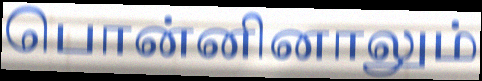
பொன்னினாலும்